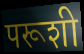
परूशी